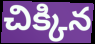
చిక్కిన